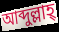
আব্দুল্লাহ্